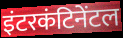
इंटरकंटिनेंटल